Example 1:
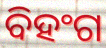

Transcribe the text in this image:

ବିହଂଗ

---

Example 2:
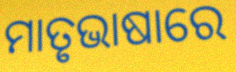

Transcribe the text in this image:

ମାତୃଭାଷାରେ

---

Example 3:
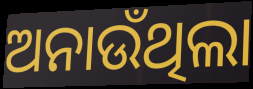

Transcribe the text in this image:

ଅନାଉଁଥିଲା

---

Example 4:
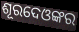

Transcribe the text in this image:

ଶୂରଦେଓଙ୍କର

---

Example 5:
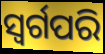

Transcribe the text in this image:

ସ୍ୱର୍ଗପରି